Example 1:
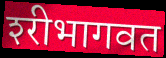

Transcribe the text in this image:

श्रीभागवत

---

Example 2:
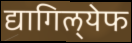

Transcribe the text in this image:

द्यागिल्येफ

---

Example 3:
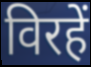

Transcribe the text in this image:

विरहें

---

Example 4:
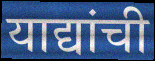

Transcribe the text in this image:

याद्यांची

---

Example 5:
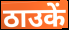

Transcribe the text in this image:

ठाउकें